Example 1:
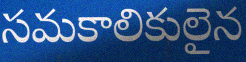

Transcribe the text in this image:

సమకాలికులైన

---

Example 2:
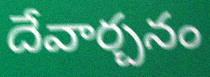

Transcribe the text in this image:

దేవార్చనం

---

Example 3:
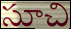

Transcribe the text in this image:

సూచి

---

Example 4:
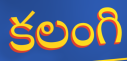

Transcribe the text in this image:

కలంగి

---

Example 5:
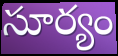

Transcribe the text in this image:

సూర్యం